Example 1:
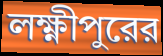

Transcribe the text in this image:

লক্ষ্ণীপুরের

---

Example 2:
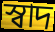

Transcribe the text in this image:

স্বাদ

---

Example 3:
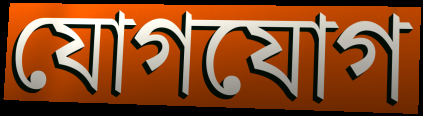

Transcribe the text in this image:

যোগযোগ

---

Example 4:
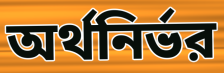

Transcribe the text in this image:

অর্থনির্ভর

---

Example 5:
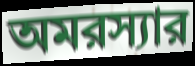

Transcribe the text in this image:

অমরস্যার